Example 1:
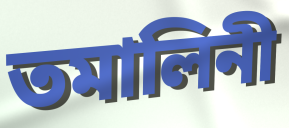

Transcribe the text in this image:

তমালিনী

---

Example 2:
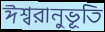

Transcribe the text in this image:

ঈশ্বরানুভূতি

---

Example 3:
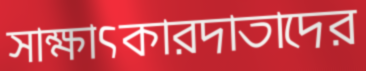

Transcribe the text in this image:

সাক্ষাৎকারদাতাদের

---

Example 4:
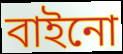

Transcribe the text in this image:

বাইনো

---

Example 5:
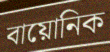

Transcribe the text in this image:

বায়োনিক